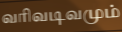
வரிவடிவமும்